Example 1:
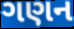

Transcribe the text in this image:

ગણન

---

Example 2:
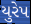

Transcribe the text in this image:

યુરેપ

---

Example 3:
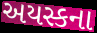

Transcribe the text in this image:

અયસ્કના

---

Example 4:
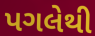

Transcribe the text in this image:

પગલેથી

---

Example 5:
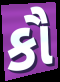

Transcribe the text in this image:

કૌ